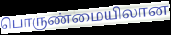
பொருண்மையிலான